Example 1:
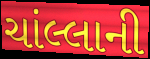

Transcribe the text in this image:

ચાંલ્લાની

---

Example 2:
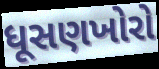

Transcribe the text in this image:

ધૂસણખોરો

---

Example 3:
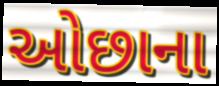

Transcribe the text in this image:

ઓછાના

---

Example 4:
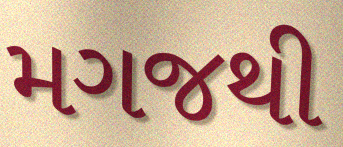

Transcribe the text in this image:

મગજથી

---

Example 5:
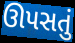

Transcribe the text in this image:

ઊપસતું